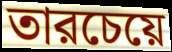
তারচেয়ে